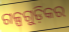
ଗଳ୍ପଗୁଡ଼ିକର